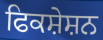
ਫਿਕਸ਼ੇਸ਼ਨ